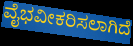
ವೈಭವೀಕರಿಸಲಾಗಿದೆ